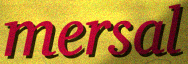
mersal